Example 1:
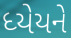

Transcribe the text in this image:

ધ્યેયને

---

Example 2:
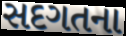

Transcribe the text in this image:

સદગતના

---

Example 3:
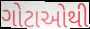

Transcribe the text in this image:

ગોટાઓથી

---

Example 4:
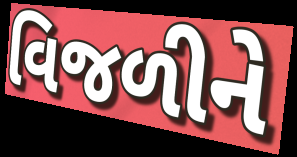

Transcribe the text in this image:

વિજળીને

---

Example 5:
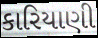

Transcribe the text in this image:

કારિયાણી